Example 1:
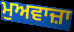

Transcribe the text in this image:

ਮੁਅਵਾਜ਼ਾ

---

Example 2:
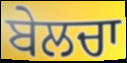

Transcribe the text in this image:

ਬੇਲਚਾ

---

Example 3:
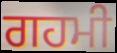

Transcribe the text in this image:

ਗਹਮੀ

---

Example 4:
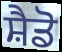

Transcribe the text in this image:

ਸ਼ੈਡੋ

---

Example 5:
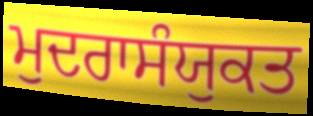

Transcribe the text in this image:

ਮੁਦਰਾਸੰਯੁਕਤ